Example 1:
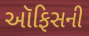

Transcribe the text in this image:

ઑફિસની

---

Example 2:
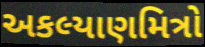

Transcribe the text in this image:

અકલ્યાણમિત્રો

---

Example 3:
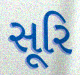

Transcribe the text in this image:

સૂરિ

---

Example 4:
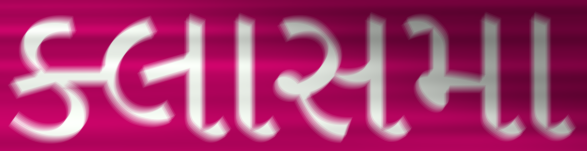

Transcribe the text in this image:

ક્લાસમા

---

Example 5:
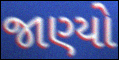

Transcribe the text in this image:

જાણ્યો